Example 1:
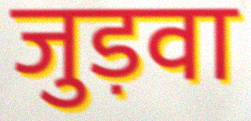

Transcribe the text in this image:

जुड़वा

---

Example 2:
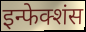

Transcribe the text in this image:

इन्फेक्शंस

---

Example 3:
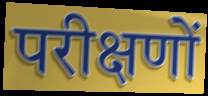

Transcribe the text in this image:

परीक्षणों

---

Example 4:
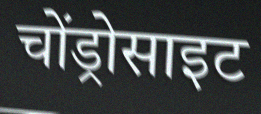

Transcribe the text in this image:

चोंड्रोसाइट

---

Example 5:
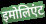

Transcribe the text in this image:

इमोलिएंट